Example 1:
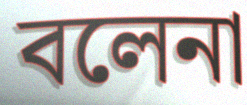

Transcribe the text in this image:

বলেনা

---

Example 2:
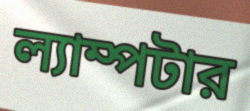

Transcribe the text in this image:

ল্যাম্পটার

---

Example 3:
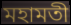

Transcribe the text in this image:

মহামতী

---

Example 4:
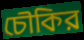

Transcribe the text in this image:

চৌকির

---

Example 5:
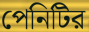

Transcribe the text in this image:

পেনিটির